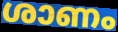
ശാണം